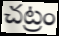
చట్రం